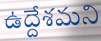
ఉద్దేశమని